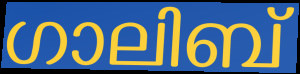
ഗാലിബ്